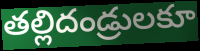
తల్లిదండ్రులకూ